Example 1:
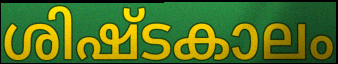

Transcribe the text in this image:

ശിഷ്ടകാലം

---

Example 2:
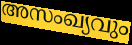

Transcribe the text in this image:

അസംഖ്യവും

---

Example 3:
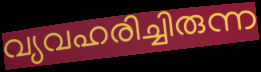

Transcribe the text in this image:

വ്യവഹരിച്ചിരുന്ന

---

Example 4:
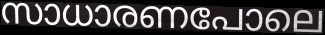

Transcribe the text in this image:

സാധാരണപോലെ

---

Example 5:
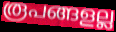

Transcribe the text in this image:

രൂപങ്ങളല്ല